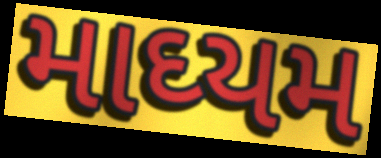
માઘ્યમ